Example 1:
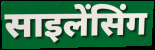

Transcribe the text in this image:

साइलेंसिंग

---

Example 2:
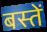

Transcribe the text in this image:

बस्तें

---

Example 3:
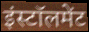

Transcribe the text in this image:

इंस्टॉलमेंट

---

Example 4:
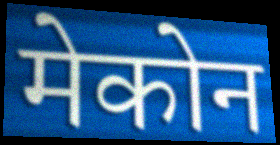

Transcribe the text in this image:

मेकोन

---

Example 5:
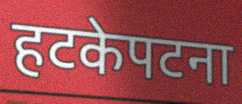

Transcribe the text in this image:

हटकेपटना